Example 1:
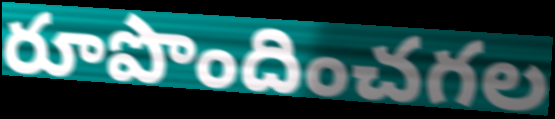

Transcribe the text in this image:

రూపొందించగల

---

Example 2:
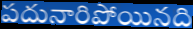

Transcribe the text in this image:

పదునారిపోయినది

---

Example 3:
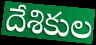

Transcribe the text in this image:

దేశికుల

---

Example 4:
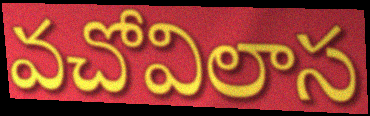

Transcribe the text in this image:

వచోవిలాస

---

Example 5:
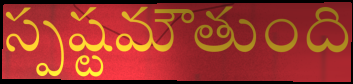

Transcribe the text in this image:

స్పష్టమౌతుంది